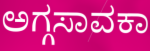
ಅಗ್ಗಸಾವಕಾ